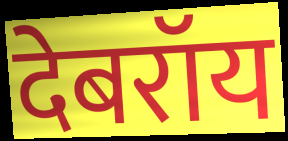
देबरॉय